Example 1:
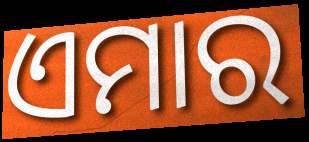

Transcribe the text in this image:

ଏମାର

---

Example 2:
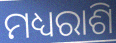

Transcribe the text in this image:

ମଧ୍ୟରାଶି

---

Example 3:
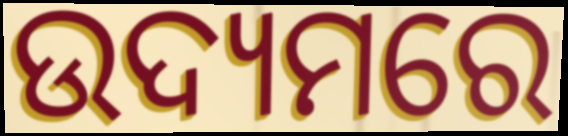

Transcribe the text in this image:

ଉଦ୍ୟମରେ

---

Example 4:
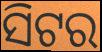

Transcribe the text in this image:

ସିଟର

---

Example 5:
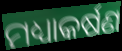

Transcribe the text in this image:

ମଧ୍ୟାକର୍ଷଣ